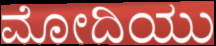
ಮೋದಿಯು